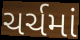
ચર્ચમાં